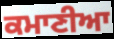
ਕਮਾਣੀਆ